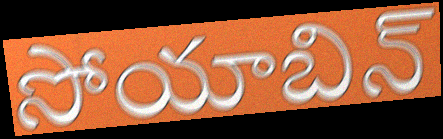
సోయాబిన్